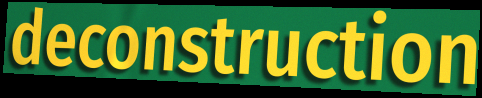
deconstruction